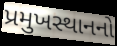
પ્રમુખસ્થાનનો